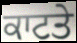
ਕਾਟਤੇ